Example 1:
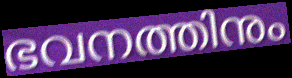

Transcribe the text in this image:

ഭവനത്തിനും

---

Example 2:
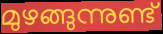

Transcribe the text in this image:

മുഴങ്ങുന്നുണ്ട്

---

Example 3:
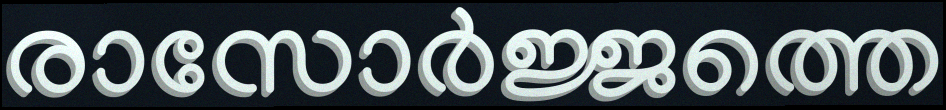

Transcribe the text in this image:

രാസോർജ്ജത്തെ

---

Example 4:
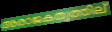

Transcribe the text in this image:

അരാജകത്വത്തില്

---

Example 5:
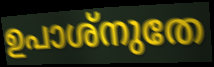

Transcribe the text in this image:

ഉപാശ്നുതേ